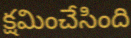
క్షమించేసింది